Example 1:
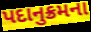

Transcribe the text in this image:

પદાનુક્રમના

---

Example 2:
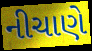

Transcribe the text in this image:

નીચાણે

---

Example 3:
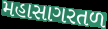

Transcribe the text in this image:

મહાસાગરતળ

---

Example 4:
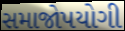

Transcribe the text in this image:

સમાજોપયોગી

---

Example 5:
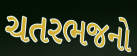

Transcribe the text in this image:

ચતરભજનો